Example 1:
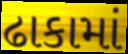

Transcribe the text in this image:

ઢાકામાં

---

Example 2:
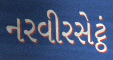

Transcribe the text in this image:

નરવીરસેટ્ઠં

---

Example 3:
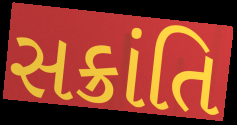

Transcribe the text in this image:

સક્રાંતિ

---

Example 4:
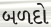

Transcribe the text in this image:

બળદો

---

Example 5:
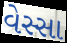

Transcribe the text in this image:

વેસ્સા